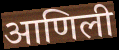
आणिली